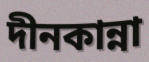
দীনকান্না